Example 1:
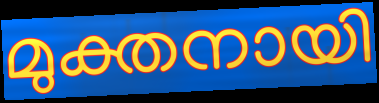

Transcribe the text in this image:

മുക്തനായി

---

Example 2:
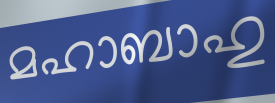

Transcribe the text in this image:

മഹാബാഹു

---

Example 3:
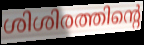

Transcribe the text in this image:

ശിശിരത്തിന്റെ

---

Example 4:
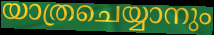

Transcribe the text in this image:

യാത്രചെയ്യാനും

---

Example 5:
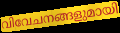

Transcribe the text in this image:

വിവേചനങ്ങളുമായി